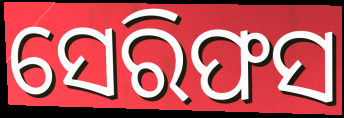
ସେରିଫସ